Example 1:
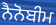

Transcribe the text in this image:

ਨੈਨੋਬੀਮ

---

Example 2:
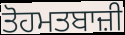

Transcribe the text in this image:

ਤੋਹਮਤਬਾਜ਼ੀ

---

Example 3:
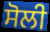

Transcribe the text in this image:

ਸੋਲੀ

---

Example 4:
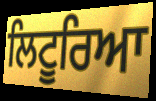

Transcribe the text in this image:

ਲਿਟੂਰਿਆ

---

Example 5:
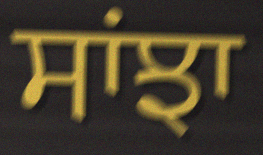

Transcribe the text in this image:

ਸਾਂਝਾ